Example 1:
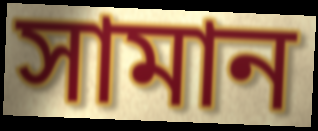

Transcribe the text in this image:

সামান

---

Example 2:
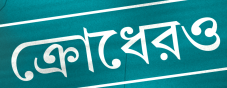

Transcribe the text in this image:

ক্রোধেরও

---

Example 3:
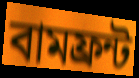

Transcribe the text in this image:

বামফ্রন্ট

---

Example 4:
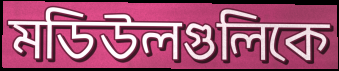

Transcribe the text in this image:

মডিউলগুলিকে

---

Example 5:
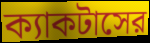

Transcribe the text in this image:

ক্যাকটাসের